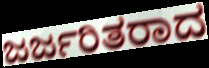
ಜರ್ಜರಿತರಾದ